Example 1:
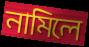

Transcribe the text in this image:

নামিলে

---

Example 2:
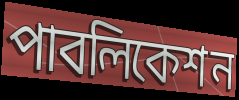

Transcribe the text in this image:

পাবলিকেশন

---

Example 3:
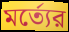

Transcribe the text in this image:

মর্ত্যের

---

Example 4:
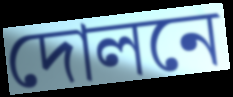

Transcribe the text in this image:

দোলনে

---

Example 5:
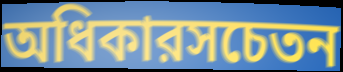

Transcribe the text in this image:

অধিকারসচেতন